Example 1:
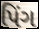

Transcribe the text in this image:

પિંગ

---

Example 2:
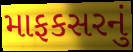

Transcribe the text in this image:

માફકસરનું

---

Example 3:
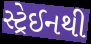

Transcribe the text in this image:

સ્ટ્રેઈનથી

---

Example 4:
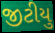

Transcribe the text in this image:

જીટીયુ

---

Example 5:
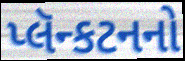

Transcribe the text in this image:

પ્લૅન્કટનનો